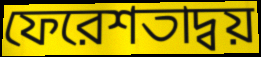
ফেরেশতাদ্বয়